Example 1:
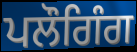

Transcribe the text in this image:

ਪਲੌਗਿੰਗ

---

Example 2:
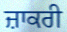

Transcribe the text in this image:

ਜ਼ਾਕਰੀ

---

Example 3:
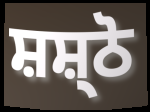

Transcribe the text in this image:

ਸ਼ਸ਼੍ਠੋ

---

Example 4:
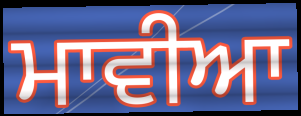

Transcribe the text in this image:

ਮਾਵੀਆ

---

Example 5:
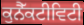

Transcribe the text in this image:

ਕੁਨੈੱਕਟੀਵਿਟੀ